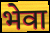
भेवा